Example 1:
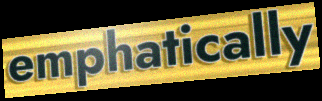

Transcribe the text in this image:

emphatically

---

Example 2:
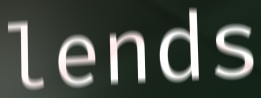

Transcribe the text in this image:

lends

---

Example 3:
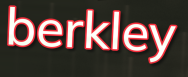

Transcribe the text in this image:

berkley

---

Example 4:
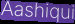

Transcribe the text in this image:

Aashiqui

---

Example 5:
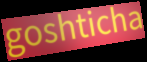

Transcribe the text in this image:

goshticha